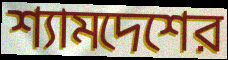
শ্যামদেশের